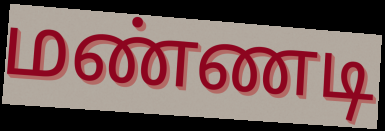
மண்ணடி